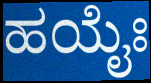
ಹಯೈಃ